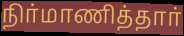
நிர்மாணித்தார்